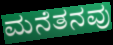
ಮನೆತನವು